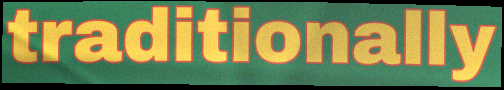
traditionally